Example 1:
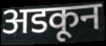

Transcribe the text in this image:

अडकून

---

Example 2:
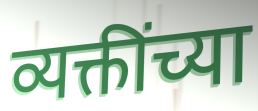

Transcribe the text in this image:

व्यक्तींच्या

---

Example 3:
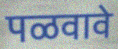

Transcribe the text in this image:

पळवावे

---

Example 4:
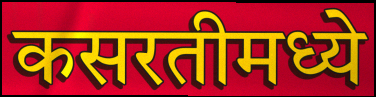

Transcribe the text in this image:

कसरतीमध्ये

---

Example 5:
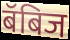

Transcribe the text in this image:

बॅबिज